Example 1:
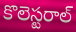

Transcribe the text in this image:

కొలెస్టరాల్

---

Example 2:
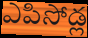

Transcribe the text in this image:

ఎపిసోడ్ల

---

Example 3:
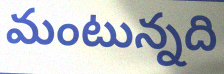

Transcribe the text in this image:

మంటున్నది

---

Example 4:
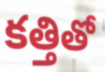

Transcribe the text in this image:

కత్తితో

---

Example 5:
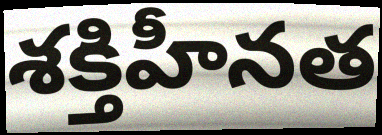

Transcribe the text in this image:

శక్తిహీనత